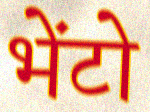
भेंटो